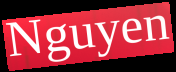
Nguyen